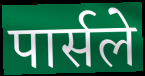
पार्सले